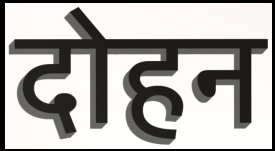
दोहन